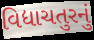
વિદ્યાચતુરનું